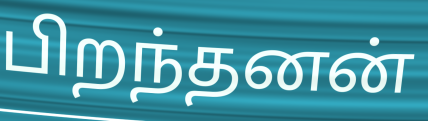
பிறந்தனன்